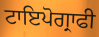
ਟਾਇਪੋਗ੍ਰਾਫੀ